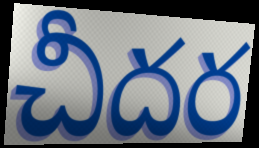
చీదర